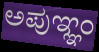
ಅಪುಞ್ಞಂ